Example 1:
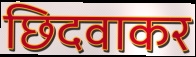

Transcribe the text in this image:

छिदवाकर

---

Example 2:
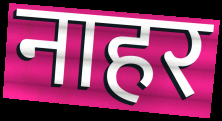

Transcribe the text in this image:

नाहर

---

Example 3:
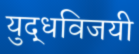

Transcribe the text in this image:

युद्धविजयी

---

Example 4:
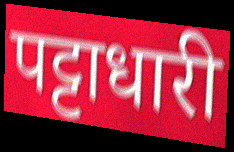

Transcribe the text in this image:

पट्टाधारी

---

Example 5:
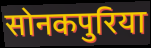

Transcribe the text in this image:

सोनकपुरिया